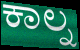
ಕಾಲ್ನ